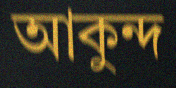
আকুন্দ